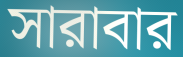
সারাবার